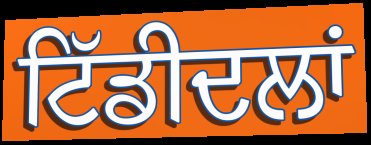
ਟਿੱਡੀਦਲਾਂ